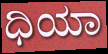
ಧಿಯಾ